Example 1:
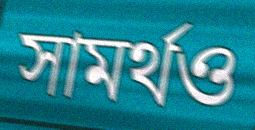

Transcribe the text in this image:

সামর্থও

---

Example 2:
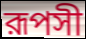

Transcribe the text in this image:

রূপসী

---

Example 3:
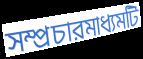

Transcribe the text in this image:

সম্প্রচারমাধ্যমটি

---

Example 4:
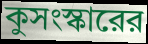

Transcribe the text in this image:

কুসংস্কারের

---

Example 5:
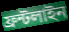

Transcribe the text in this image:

ফ্রন্টলাইন